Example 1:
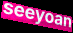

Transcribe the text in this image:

seeyoan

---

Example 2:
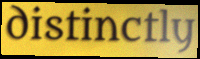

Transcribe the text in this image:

distinctly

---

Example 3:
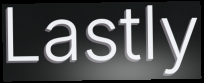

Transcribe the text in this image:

Lastly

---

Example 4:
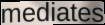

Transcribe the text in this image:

mediates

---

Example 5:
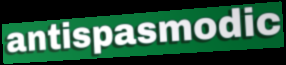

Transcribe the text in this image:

antispasmodic